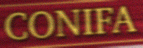
CONIFA